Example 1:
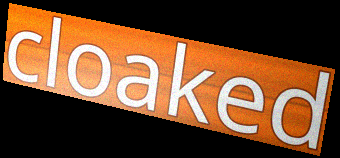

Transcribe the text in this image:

cloaked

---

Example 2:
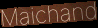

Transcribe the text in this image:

Maichand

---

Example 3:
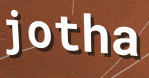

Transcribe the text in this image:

jotha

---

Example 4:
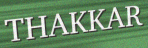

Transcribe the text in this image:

THAKKAR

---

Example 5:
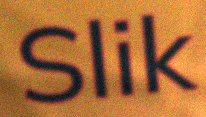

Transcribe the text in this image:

Slik